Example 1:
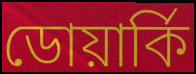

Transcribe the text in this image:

ডোয়ার্কি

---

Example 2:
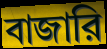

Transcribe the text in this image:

বাজারি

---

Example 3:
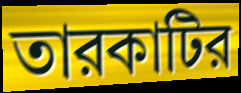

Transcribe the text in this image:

তারকাটির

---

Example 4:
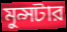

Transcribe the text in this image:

মুন্সটার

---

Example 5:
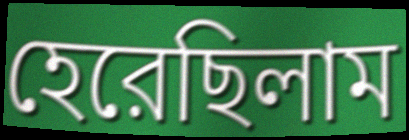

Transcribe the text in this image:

হেরেছিলাম